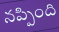
నప్పింది